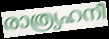
രാത്ര്യഹനീ